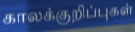
காலக்குறிப்புகள்